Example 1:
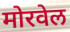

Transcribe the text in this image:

मोरवेल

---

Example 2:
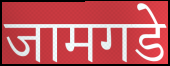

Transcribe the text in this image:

जामगडे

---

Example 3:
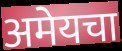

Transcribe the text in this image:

अमेयचा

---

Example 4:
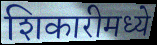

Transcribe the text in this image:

शिकारीमध्ये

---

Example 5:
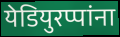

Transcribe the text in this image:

येडियुरप्पांना